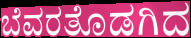
ಬೆವರತೊಡಗಿದ